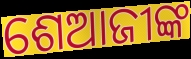
ଶେଆଜୀଙ୍କ